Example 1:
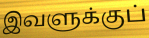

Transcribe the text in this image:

இவளுக்குப்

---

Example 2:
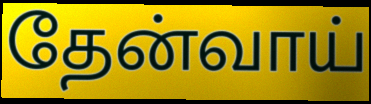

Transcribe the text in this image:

தேன்வாய்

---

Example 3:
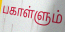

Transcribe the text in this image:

பகாள்ளும்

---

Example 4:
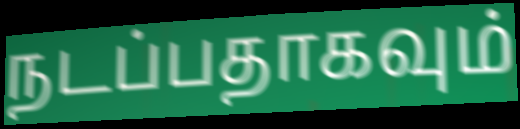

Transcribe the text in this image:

நடப்பதாகவும்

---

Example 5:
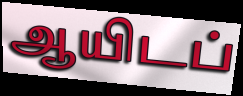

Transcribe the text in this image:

ஆயிடப்